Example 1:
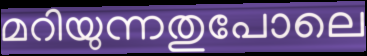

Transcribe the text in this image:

മറിയുന്നതുപോലെ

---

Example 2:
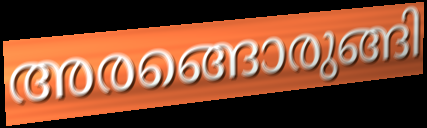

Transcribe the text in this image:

അരങ്ങൊരുങ്ങി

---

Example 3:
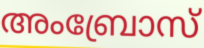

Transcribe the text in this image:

അംബ്രോസ്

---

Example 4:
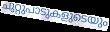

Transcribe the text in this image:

ചുറ്റുപാടുകളുടെയും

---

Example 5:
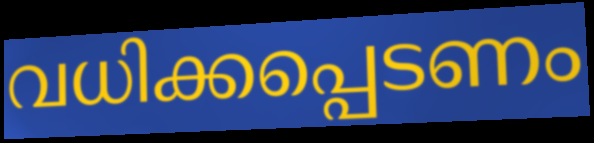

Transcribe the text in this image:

വധിക്കപ്പെടണം